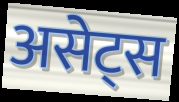
असेट्स